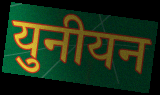
युनीयन